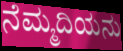
ನೆಮ್ಮದಿಯನು